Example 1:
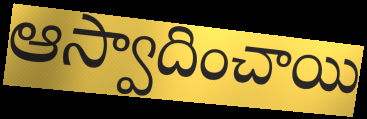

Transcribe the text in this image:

ఆస్వాదించాయి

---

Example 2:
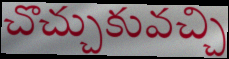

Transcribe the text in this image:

చొచ్చుకువచ్చి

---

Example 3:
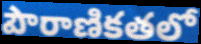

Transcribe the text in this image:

పౌరాణికతలో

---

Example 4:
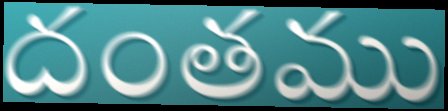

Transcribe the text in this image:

దంతము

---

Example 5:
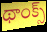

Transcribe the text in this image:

థాంక్స్